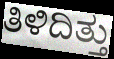
ತಿಳಿದಿತ್ತು